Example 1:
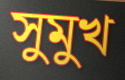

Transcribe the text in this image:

সুমুখ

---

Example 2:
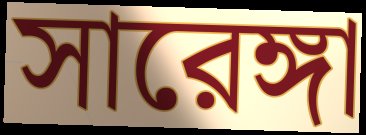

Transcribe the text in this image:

সারেঙ্গা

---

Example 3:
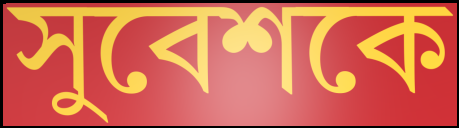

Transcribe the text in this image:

সুবেশকে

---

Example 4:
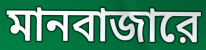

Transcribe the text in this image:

মানবাজারে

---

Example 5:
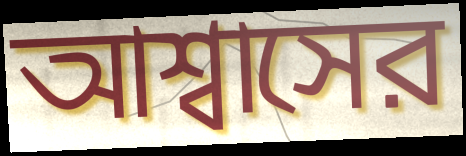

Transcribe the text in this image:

আশ্বাসের